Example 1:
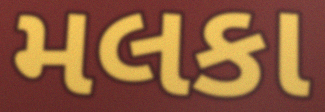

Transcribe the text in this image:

મલકા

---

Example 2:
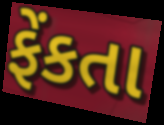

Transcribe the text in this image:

ફેંકતા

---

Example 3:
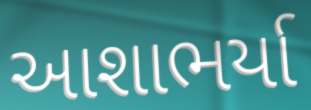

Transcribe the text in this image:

આશાભર્યા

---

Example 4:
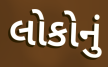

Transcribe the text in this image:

લોકોનું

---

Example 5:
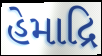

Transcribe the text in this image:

હેમાદ્રિ